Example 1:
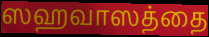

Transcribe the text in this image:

ஸஹவாஸத்தை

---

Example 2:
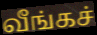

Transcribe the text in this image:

வீங்கச்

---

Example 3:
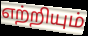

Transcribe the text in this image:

எற்றியும்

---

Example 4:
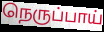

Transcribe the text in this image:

நெருப்பாய்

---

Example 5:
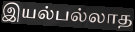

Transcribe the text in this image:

இயல்பல்லாத